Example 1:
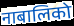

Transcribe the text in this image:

नाबालिको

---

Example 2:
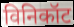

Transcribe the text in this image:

विनिकॉट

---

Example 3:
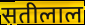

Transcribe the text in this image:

सतीलाल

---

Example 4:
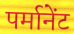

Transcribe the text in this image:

पर्मानेंट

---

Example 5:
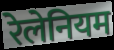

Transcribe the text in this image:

रेलेनियम